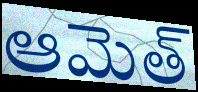
ఆమెత్